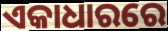
ଏକାଧାରରେ